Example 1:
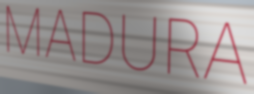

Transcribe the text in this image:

MADURA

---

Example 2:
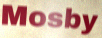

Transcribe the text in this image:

Mosby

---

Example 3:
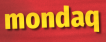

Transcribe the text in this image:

mondaq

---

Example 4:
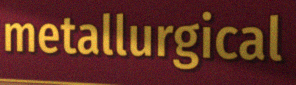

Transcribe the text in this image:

metallurgical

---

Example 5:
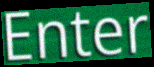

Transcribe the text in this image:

Enter